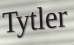
Tytler